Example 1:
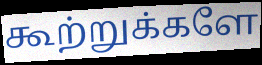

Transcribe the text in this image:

கூற்றுக்களே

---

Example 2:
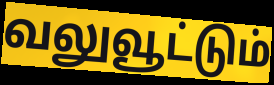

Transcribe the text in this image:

வலுவூட்டும்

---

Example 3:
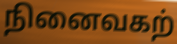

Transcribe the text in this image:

நினைவகற்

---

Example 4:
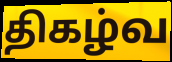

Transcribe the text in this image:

திகழ்வ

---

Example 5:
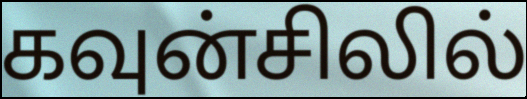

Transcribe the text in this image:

கவுன்சிலில்